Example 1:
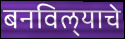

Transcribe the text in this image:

बनविल्याचे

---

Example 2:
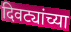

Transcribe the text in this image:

दिवट्यांच्या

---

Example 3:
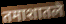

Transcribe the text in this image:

तमाशातले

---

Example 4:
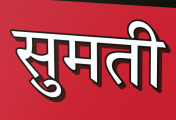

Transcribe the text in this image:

सुमती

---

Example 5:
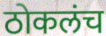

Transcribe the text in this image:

ठोकलंच